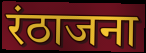
रंठाजना